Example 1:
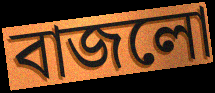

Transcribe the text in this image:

বাজলো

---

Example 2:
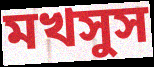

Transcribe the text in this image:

মখসুস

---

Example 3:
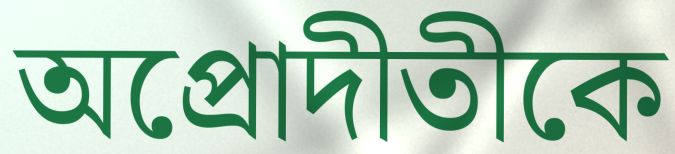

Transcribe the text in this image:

অপ্রোদীতীকে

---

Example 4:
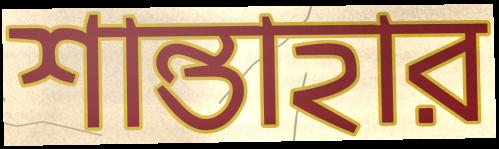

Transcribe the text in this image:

শান্তাহার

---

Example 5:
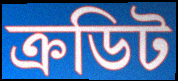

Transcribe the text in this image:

ক্রডিট